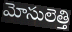
మోసులెత్తి